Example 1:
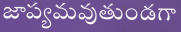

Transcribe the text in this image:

జాప్యమవుతుండగా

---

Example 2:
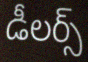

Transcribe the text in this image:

డీలర్స్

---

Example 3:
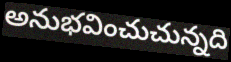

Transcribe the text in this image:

అనుభవించుచున్నది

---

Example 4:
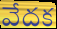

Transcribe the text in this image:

వేదక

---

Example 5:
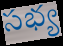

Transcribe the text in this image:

సభ్య